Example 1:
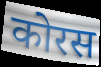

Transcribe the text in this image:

कोरस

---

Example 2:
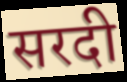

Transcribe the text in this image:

सरदी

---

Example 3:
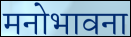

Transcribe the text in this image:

मनोभावना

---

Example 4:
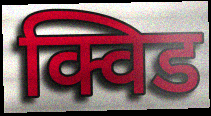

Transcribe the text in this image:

क्विड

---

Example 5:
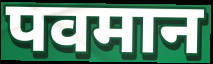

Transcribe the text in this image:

पवमान